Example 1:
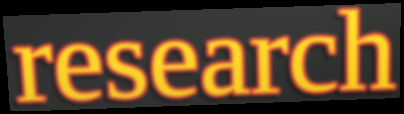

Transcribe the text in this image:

research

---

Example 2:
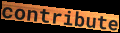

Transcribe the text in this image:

contribute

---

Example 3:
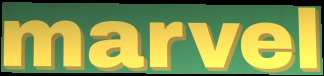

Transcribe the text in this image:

marvel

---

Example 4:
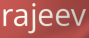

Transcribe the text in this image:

rajeev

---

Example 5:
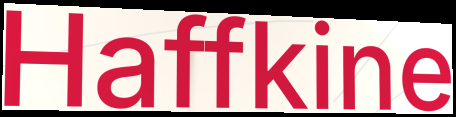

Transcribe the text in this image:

Haffkine